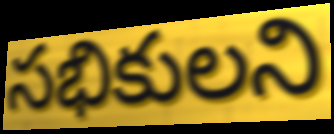
సభికులని